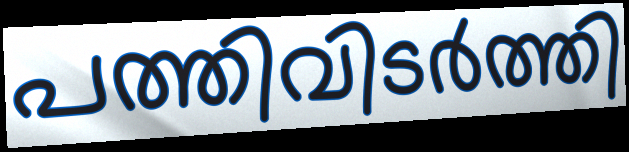
പത്തിവിടർത്തി